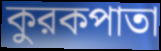
কুরকপাতা